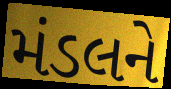
મંડલને